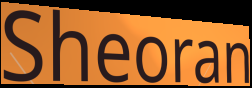
Sheoran